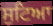
ਸੁਟਿਆ